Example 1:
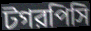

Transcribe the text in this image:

টগরপিসি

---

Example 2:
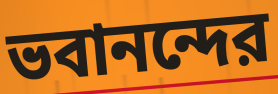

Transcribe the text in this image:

ভবানন্দের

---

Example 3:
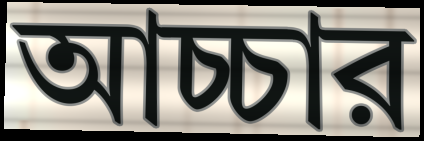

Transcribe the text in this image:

আচ্চার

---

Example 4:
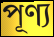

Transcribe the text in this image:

পূণ্য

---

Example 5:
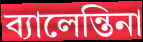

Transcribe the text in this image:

ব্যালেন্তিনা